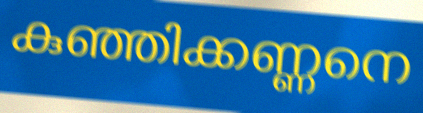
കുഞ്ഞിക്കണ്ണനെ